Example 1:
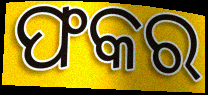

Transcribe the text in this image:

ଫକର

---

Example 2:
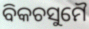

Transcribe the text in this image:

ବିକଚସୁମୈ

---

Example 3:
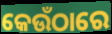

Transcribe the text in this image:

କେଉଁଠାରେ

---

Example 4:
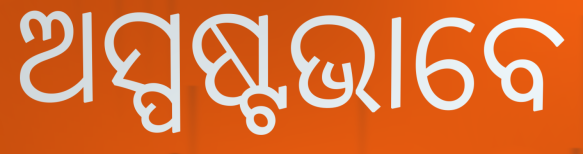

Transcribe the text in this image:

ଅସ୍ପଷ୍ଟଭାବେ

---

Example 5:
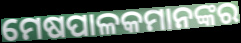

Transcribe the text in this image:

ମେଷପାଳକମାନଙ୍କର